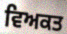
ਵਿਅਕਤ